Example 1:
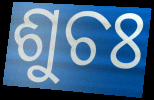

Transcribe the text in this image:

ଶୁଚଃ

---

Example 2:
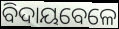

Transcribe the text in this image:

ବିଦାୟବେଳେ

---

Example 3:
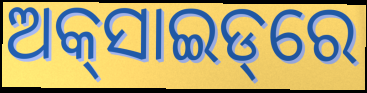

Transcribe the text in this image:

ଅକ୍‌ସାଇଡ୍‌ରେ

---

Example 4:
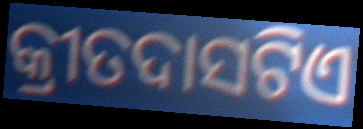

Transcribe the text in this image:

କ୍ରୀତଦାସଟିଏ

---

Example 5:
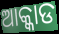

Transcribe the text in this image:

ଆକ୍କାଡ